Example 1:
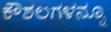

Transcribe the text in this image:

ಕೌಶಲಗಳನ್ನೂ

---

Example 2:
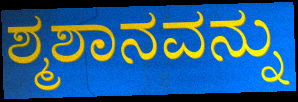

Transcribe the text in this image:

ಶ್ಮಶಾನವನ್ನು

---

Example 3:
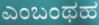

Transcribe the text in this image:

ಎಂಬಂಥಹ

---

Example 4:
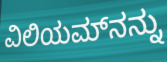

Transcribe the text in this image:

ವಿಲಿಯಮ್‌ನನ್ನು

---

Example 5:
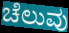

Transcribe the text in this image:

ಚೆಲುವು